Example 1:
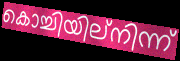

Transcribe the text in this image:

കൊച്ചിയില്നിന്ന്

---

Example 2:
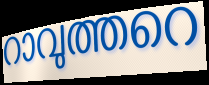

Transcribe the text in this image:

റാവുത്തറെ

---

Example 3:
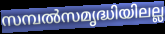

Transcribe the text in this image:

സമ്പൽസമൃദ്ധിയിലല്ല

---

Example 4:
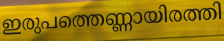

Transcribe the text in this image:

ഇരുപത്തെണ്ണായിരത്തി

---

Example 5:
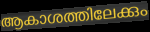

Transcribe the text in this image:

ആകാശത്തിലേക്കും